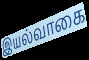
இயல்வாகை